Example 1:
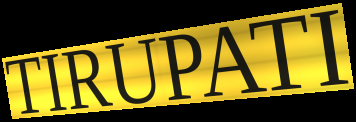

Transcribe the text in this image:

TIRUPATI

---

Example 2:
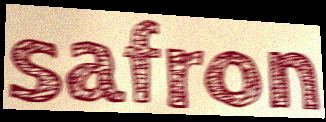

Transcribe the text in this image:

safron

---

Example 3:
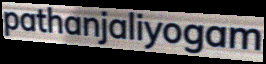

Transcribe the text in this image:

pathanjaliyogam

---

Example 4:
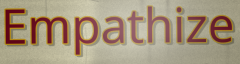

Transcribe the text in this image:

Empathize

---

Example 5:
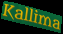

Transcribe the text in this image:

Kallima